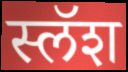
स्लॅश